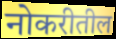
नोकरीतील